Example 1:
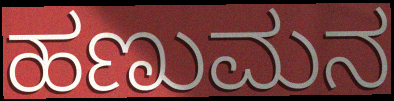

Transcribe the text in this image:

ಹಣುಮನ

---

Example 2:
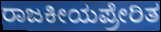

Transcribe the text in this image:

ರಾಜಕೀಯಪ್ರೇರಿತ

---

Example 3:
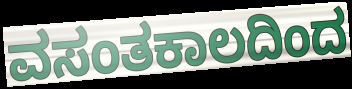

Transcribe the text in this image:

ವಸಂತಕಾಲದಿಂದ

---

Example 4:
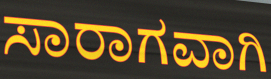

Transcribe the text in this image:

ಸಾರಾಗವಾಗಿ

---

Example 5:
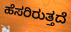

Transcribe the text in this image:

ಹೆಸರಿರುತ್ತದೆ